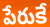
పేరుకే